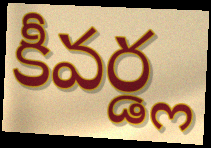
కీవర్డ్ల